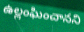
ఉల్లంఘించానని